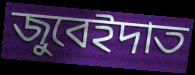
জুবেইদাত